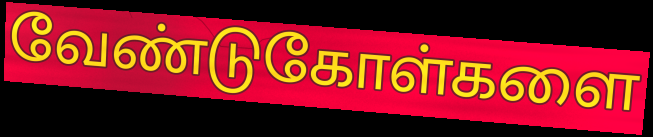
வேண்டுகோள்களை